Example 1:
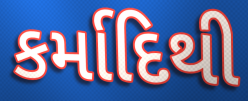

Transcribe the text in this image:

કર્માદિથી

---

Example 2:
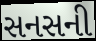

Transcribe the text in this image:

સનસની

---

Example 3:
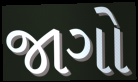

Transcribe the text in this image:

જાગો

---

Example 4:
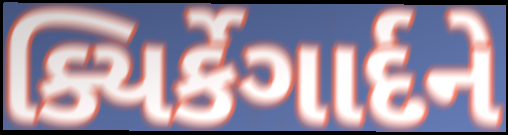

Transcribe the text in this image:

ક્યિર્કેગાર્દને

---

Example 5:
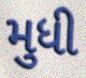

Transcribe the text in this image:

મુધી